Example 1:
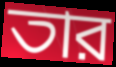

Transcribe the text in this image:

তার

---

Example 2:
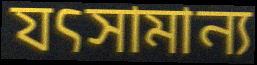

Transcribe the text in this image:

যৎসামান্য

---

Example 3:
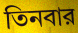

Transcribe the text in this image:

তিনবার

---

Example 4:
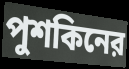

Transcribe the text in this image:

পুশকিনের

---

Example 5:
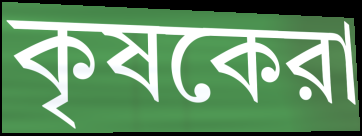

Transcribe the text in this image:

কৃষকেরা